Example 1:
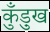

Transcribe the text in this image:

कुँड़ुख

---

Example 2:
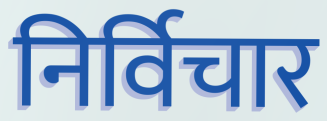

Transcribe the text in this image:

निर्विचार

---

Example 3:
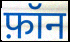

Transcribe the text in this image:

फ़ॉन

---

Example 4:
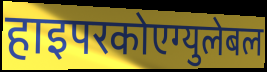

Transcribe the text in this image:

हाइपरकोएग्युलेबल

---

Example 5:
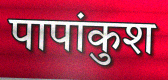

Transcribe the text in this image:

पापांकुश